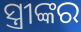
ସ୍ତ୍ରୀଙ୍କର